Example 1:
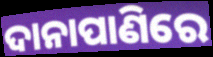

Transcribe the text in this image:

ଦାନାପାଣିରେ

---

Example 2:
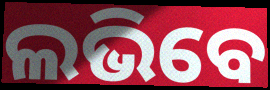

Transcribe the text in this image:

ଲଭିବେ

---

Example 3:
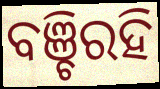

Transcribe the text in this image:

ବଞ୍ଚିରହି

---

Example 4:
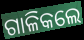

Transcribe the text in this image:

ଗାଳିକଲେ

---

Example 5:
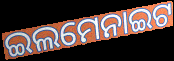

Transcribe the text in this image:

ଇଲମେନାଇଟ